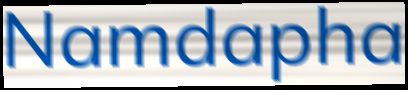
Namdapha